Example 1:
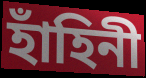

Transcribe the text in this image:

হাঁহিনী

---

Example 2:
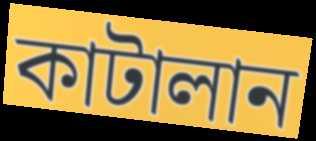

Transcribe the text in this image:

কাটালান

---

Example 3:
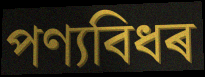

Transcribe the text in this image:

পণ্যবিধৰ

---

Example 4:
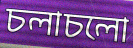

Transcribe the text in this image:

চলাচলো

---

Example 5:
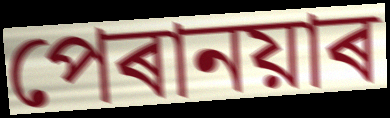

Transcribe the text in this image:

পেৰানয়াৰ